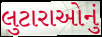
લુટારાઓનું